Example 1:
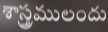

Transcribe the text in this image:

శాస్త్రములందు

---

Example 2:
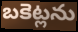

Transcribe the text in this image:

బకెట్లను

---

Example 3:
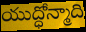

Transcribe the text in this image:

యుద్ధోన్మాది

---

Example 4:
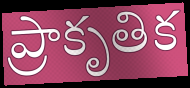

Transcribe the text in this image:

ప్రాకృతిక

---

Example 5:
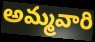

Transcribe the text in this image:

అమ్మవారి